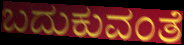
ಬದುಕುವಂತೆ